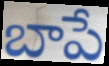
బాపే